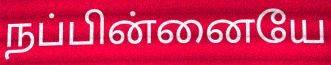
நப்பின்னையே